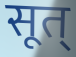
सूत्